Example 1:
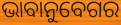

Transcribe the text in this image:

ଭାବାନୁବେଗର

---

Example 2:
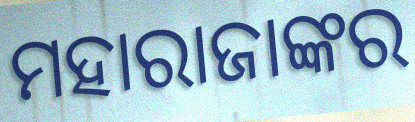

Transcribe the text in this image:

ମହାରାଜାଙ୍କର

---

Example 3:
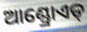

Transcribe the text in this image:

ଆଣ୍ଡ୍ରୋଏଡ୍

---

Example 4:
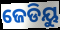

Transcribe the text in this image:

ଜେଡିୟୁ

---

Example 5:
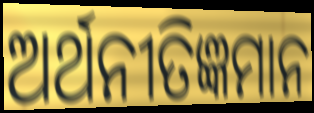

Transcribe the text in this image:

ଅର୍ଥନୀତିଜ୍ଞମାନ